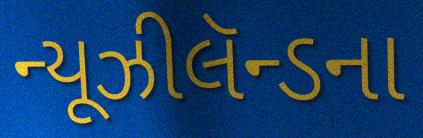
ન્યૂઝીલૅન્ડના